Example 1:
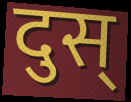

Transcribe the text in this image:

दुस्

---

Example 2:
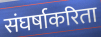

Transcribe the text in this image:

संघर्षाकरिता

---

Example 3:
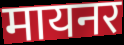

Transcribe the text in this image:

मायनर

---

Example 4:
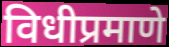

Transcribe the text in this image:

विधीप्रमाणे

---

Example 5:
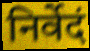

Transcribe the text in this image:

निर्वेदं